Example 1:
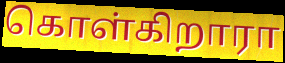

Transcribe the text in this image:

கொள்கிறாரா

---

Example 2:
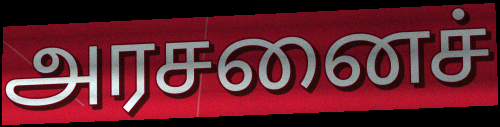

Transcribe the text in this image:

அரசனைச்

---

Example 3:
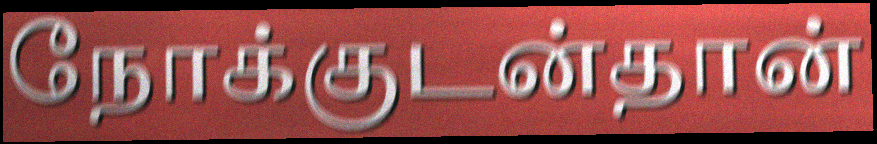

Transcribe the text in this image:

நோக்குடன்தான்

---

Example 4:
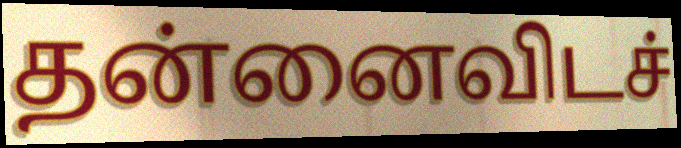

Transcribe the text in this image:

தன்னைவிடச்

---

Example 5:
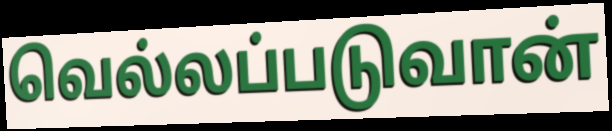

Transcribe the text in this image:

வெல்லப்படுவான்